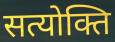
सत्योक्ति